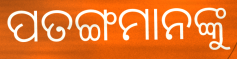
ପତଙ୍ଗମାନଙ୍କୁ